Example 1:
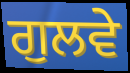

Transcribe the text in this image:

ਗੁਲਵੇ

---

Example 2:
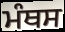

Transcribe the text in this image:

ਮੰਥਸ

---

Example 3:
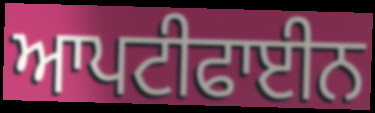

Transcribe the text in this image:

ਆਪਟੀਫਾਈਨ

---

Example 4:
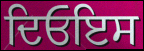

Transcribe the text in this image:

ਦਿਓਇਸ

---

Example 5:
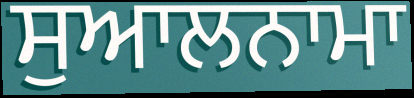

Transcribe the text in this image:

ਸੁਆਲਨਾਮਾ